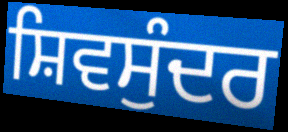
ਸ਼ਿਵਸੁੰਦਰ